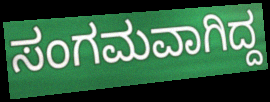
ಸಂಗಮವಾಗಿದ್ದ